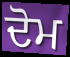
ਦੋਮ